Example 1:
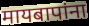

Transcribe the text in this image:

मायबापांना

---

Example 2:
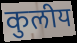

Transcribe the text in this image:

कुलीय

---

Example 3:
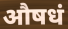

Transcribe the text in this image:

औषधं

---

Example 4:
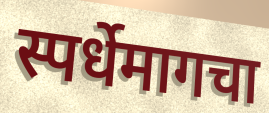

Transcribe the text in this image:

स्पर्धेमागचा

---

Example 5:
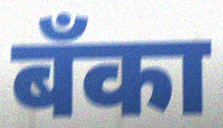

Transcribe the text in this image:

बॅंका